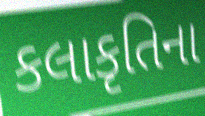
કલાકૃતિના